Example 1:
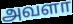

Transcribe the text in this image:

அவளா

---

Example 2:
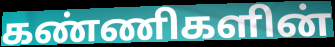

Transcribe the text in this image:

கண்ணிகளின்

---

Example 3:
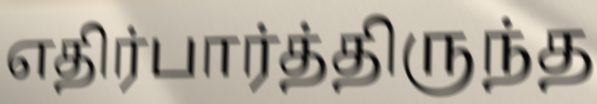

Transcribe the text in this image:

எதிர்பார்த்திருந்த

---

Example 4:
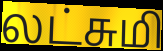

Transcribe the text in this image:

லட்சுமி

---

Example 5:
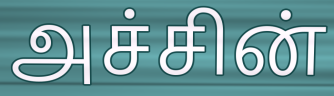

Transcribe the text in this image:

அச்சின்